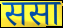
ससा